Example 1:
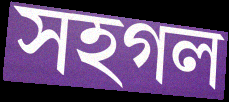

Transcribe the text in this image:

সহগল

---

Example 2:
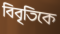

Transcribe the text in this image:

বিবৃতিকে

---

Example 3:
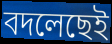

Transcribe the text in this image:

বদলেছেই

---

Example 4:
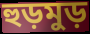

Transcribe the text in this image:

হুড়মুড়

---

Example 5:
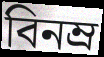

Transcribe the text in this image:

বিনম্র